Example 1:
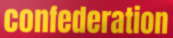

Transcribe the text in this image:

confederation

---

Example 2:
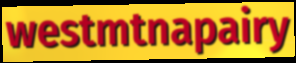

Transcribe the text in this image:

westmtnapairy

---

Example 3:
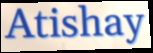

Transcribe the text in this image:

Atishay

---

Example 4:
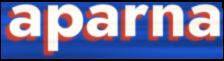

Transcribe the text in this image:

aparna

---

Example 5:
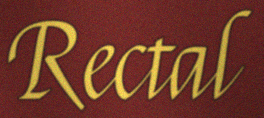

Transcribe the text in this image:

Rectal